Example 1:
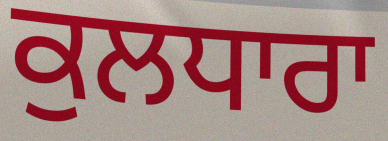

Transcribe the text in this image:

ਕੁਲਧਾਰਾ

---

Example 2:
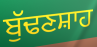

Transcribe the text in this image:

ਬੁੱਢਣਸ਼ਾਹ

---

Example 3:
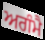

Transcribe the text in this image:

ਅਗੰਮੈ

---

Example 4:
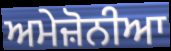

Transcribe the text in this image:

ਅਮੇਜ਼ੋਨੀਆ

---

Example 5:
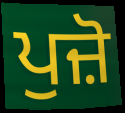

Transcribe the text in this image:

ਪੁਜ਼ੋ